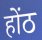
होंठ